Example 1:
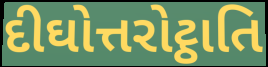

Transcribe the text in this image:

દીઘોત્તરોટ્ઠાતિ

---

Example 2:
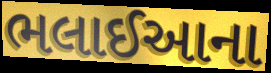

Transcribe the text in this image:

ભલાઈઆના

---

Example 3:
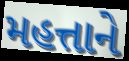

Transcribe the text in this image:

મહત્તાને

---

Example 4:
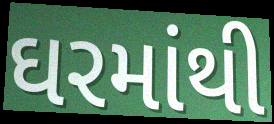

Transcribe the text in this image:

ઘરમાંથી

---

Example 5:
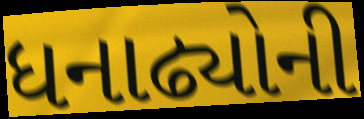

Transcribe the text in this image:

ધનાઢ્યોની